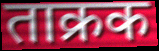
ताक्रक